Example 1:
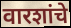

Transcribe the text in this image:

वारशांचे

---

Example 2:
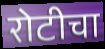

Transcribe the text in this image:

रोटीचा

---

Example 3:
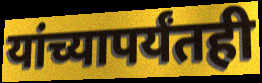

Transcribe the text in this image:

यांच्यापर्यंतही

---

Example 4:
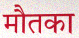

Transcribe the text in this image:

मौतका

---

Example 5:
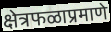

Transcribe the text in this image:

क्षेत्रफळाप्रमाणे